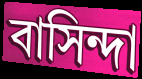
বাসিন্দা